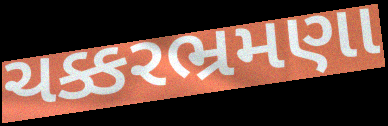
ચક્કરભ્રમણા